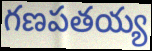
గణపతయ్య